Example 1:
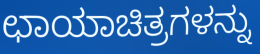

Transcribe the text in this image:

ಛಾಯಾಚಿತ್ರಗಳನ್ನು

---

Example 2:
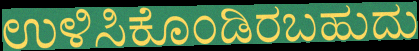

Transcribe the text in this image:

ಉಳಿಸಿಕೊಂಡಿರಬಹುದು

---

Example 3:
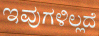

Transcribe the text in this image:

ಇವುಗಳಿಲ್ಲದೆ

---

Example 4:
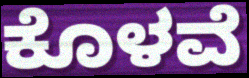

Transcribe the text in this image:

ಕೊಳವೆ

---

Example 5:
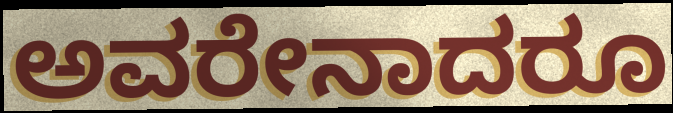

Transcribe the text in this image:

ಅವರೇನಾದರೂ